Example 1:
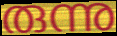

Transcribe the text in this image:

രുന്നു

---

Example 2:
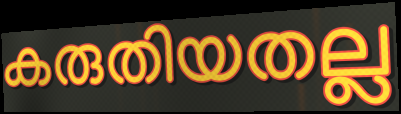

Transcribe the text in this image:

കരുതിയതല്ല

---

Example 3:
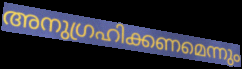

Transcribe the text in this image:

അനുഗ്രഹിക്കണമെന്നും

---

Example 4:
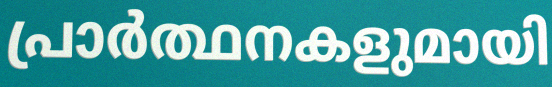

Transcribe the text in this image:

പ്രാർത്ഥനകളുമായി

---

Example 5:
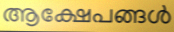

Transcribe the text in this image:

ആക്ഷേപങ്ങൾ